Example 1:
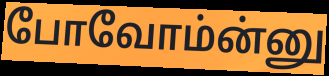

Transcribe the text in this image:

போவோம்ன்னு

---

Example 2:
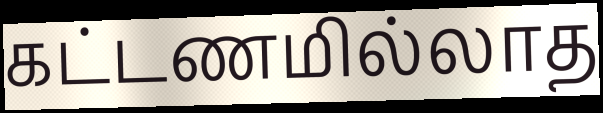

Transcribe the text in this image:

கட்டணமில்லாத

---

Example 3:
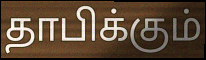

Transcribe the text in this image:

தாபிக்கும்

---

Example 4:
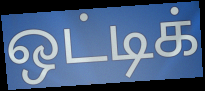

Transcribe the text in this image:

ஒட்டிக்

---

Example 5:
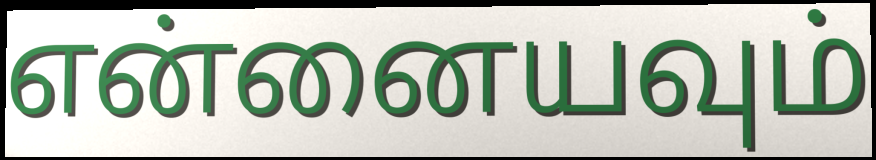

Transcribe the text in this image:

என்னையவும்